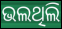
ଭଲଥିଲି